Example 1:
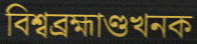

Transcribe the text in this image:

বিশ্বব্ৰহ্মাণ্ডখনক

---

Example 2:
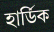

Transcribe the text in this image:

হাৰ্ডিক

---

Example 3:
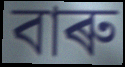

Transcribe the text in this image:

বাৰু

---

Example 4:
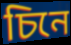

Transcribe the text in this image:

চিনে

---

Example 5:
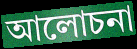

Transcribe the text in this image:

আলোচনা